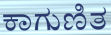
ಕಾಗುಣಿತ